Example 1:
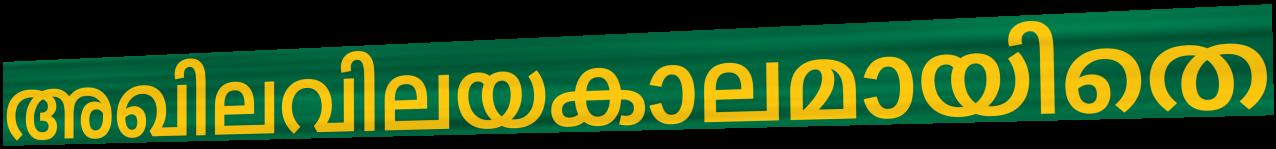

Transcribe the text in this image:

അഖിലവിലയകാലമായിതെ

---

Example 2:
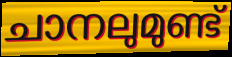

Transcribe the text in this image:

ചാനലുമുണ്ട്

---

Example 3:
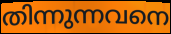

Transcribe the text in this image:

തിന്നുന്നവനെ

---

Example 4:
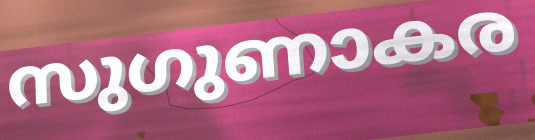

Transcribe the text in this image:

സുഗുണാകര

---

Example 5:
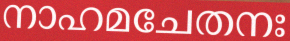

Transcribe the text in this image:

നാഹമചേതനഃ